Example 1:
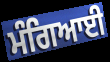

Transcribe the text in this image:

ਮੰਗਿਆਈ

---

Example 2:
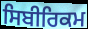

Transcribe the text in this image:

ਸਿਬੀਰਿਕਮ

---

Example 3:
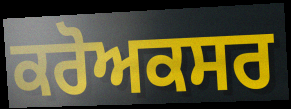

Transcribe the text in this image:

ਕਰੋਅਕਸਰ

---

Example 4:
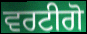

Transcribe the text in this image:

ਵਰਟੀਗੋ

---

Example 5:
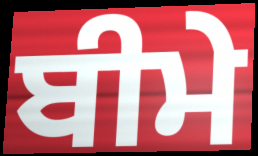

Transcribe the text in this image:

ਬੀਮੇ